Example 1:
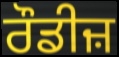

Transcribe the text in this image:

ਰੌਡੀਜ਼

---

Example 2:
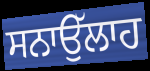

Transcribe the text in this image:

ਸਨਾਉੱਲਾਹ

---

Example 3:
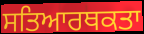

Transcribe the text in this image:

ਸਤਿਆਰਥਕਤਾ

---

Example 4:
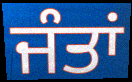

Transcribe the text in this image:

ਜੰਤਾਂ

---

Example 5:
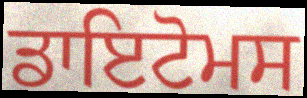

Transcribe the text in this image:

ਡਾਇਟੋਮਸ